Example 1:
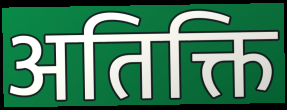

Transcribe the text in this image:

अतिक्ति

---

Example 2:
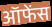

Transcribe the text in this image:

ऑफेंस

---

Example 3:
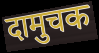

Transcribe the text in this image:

दामुचक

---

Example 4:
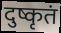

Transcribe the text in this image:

दुष्कृतं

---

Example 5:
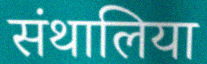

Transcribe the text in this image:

संथालिया